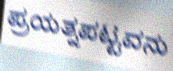
ಪ್ರಯತ್ನಪಟ್ಟವನು